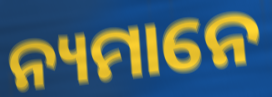
ନ୍ୟମାନେ